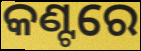
କଣ୍ଟରେ